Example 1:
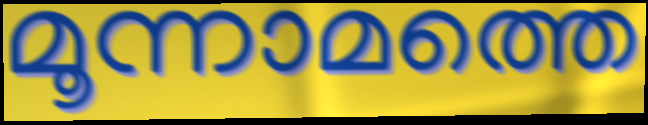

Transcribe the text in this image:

മൂന്നാമത്തെ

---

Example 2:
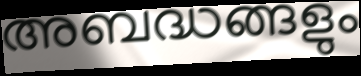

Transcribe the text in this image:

അബദ്ധങ്ങളും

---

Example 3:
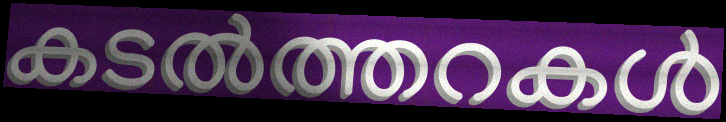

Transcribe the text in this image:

കടൽത്തറകൾ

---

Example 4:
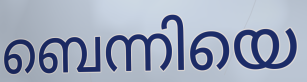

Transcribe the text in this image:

ബെന്നിയെ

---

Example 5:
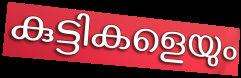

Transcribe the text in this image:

കുട്ടികളെയും